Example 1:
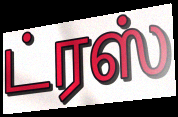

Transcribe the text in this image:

ட்ரஸ்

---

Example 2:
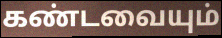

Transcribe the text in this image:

கண்டவையும்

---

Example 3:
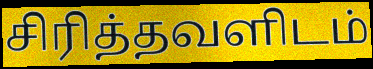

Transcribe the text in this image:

சிரித்தவளிடம்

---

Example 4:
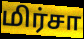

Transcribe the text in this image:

மிர்சா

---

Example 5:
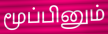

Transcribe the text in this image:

மூப்பினும்